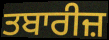
ਤਬਾਰੀਜ਼